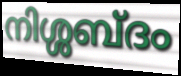
നിശ്ശബ്ദം